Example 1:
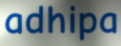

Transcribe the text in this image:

adhipa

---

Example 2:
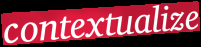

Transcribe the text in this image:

contextualize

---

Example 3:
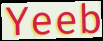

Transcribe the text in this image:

Yeeb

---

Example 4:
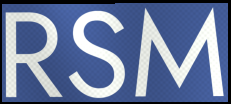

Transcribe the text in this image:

RSM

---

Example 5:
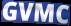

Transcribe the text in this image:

GVMC